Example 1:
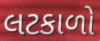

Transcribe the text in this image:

લટકાળો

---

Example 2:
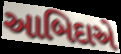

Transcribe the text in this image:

આબિદાએ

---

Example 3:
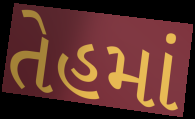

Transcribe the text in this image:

તેહમાં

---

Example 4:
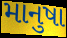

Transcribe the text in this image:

માનુષા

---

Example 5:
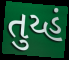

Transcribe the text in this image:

તુય્હં